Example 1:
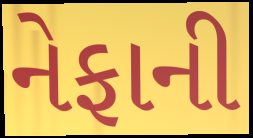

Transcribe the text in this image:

નેફાની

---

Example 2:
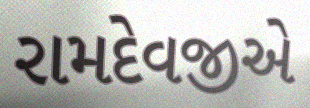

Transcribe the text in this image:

રામદેવજીએ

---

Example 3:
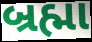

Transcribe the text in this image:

બ્રહ્મા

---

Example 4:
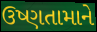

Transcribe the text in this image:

ઉષ્ણતામાને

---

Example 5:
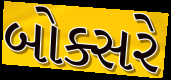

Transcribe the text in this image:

બોક્સરે